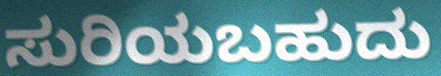
ಸುರಿಯಬಹುದು